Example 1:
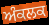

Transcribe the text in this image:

ਅੰਕਲਕ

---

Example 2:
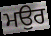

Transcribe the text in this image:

ਮਉਰ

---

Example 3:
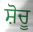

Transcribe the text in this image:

ਸ਼ੋਚੂ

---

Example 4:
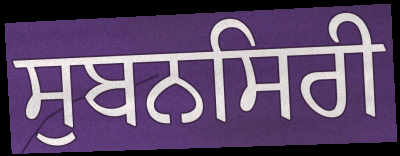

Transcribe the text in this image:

ਸੁਬਨਸਿਰੀ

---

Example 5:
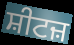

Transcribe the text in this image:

ਸ਼ੀਟਜ਼